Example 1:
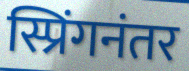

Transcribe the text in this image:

स्प्रिंगनंतर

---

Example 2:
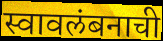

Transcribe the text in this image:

स्वावलंबनाची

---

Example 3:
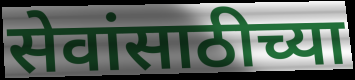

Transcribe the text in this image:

सेवांसाठीच्या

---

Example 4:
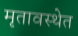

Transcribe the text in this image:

मृतावस्थेत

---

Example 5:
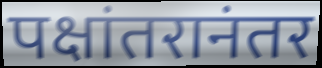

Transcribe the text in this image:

पक्षांतरानंतर